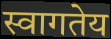
स्वागतेय